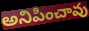
అనిపించావు